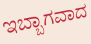
ಇಬ್ಬಾಗವಾದ